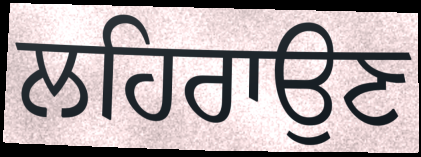
ਲਹਿਰਾਉਣ